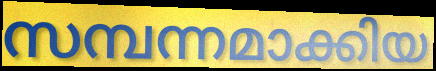
സമ്പന്നമാക്കിയ